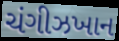
ચંગીઝખાન